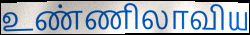
உண்ணிலாவிய